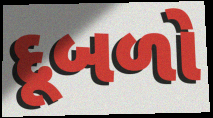
દૂબળો